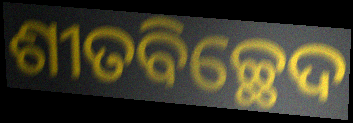
ଶୀତବିଚ୍ଛେଦ